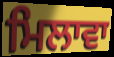
ਮਿਲਾਵਾ